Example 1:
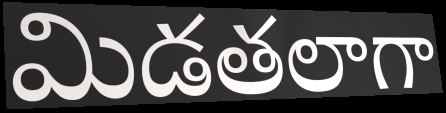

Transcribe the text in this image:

మిడతలాగా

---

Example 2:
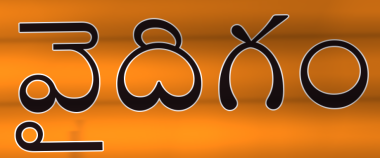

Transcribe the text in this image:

వైదిగం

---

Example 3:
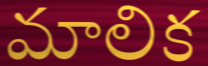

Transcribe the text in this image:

మాలిక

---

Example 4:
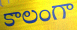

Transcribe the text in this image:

కాలంగా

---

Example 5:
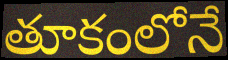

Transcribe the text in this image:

తూకంలోనే